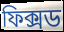
ফিক্সড